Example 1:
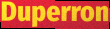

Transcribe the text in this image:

Duperron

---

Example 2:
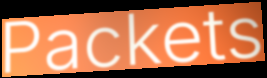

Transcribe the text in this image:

Packets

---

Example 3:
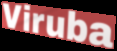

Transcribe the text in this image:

Viruba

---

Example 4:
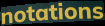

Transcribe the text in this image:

notations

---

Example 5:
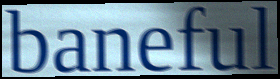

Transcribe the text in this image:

baneful